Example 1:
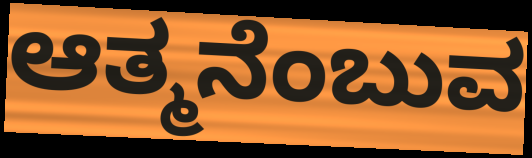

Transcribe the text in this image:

ಆತ್ಮನೆಂಬುವ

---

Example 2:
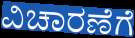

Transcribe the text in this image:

ವಿಚಾರಣೆಗೆ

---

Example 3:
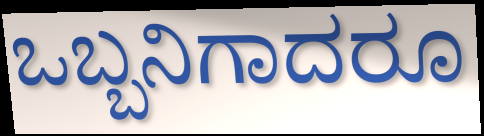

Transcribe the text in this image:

ಒಬ್ಬನಿಗಾದರೂ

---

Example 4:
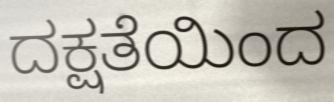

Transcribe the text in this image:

ದಕ್ಷತೆಯಿಂದ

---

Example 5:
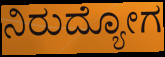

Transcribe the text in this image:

ನಿರುದ್ಯೋಗ